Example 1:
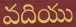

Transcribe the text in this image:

వదియు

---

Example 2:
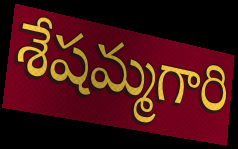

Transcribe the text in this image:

శేషమ్మగారి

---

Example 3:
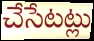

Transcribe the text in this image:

చేసేటట్లు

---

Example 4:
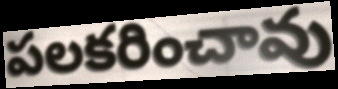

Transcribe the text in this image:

పలకరించావు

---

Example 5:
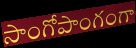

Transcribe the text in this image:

సాంగోపాంగంగా